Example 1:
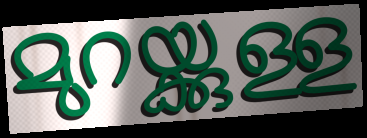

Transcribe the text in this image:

മുറയ്ക്കുള്ള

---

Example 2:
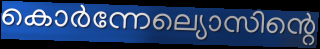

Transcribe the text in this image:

കൊർന്നേല്യൊസിന്റെ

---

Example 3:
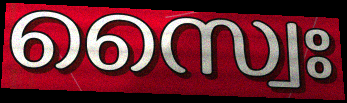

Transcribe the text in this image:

സ്വൈഃ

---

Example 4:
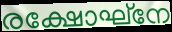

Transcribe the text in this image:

രക്ഷോഘ്നേ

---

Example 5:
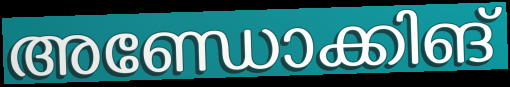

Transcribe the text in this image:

അണ്ഡോക്കിങ്